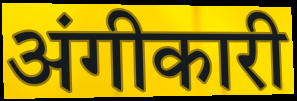
अंगीकारी